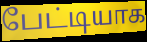
பேட்டியாக